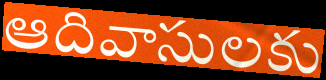
ఆదివాసులకు